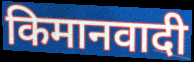
किमानवादी